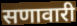
सणावारी